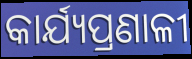
କାର୍ଯ୍ୟପ୍ରଣାଳୀ